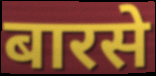
बारसे